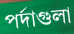
পর্দাগুলা